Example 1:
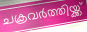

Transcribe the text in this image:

ചക്രവർത്തിയ്ക്ക്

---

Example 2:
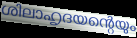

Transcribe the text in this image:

ശിലാഹൃദയന്റെയും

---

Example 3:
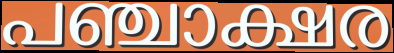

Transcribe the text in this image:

പഞ്ചാക്ഷര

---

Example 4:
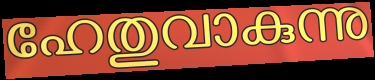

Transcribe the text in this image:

ഹേതുവാകുന്നു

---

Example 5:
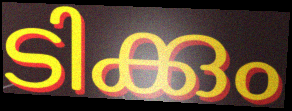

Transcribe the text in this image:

ടിക്കും